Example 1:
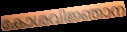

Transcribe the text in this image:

കോശവിജ്ഞാന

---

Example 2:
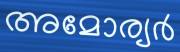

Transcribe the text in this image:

അമോര്യർ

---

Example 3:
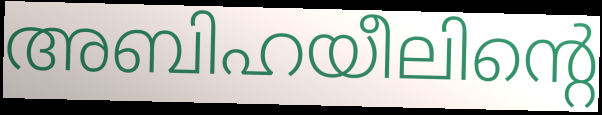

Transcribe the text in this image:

അബിഹയീലിന്റെ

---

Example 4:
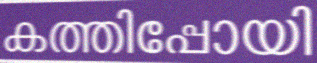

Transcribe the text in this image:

കത്തിപ്പോയി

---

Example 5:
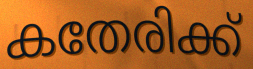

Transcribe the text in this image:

കതേരിക്ക്